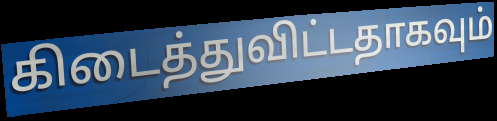
கிடைத்துவிட்டதாகவும்